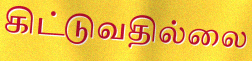
கிட்டுவதில்லை